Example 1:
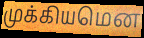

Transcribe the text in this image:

முக்கியமென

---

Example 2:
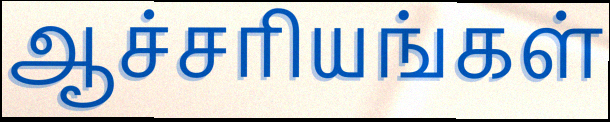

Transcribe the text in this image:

ஆச்சரியங்கள்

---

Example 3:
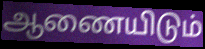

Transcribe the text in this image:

ஆணையிடும்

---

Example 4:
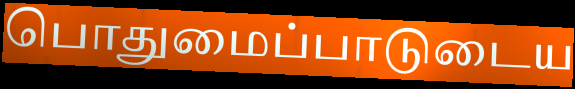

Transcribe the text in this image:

பொதுமைப்பாடுடைய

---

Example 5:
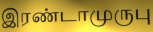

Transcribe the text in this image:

இரண்டாமுருபு